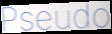
Pseudo